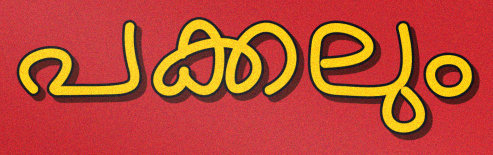
പക്കലും